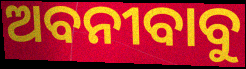
ଅବନୀବାବୁ